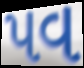
પવ